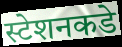
स्टेशनकडे